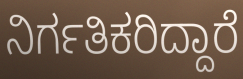
ನಿರ್ಗತಿಕರಿದ್ದಾರೆ